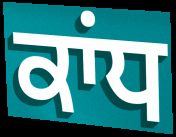
ਕਾਂਧ